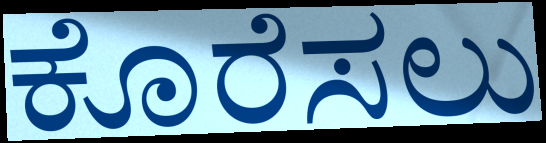
ಕೊರೆಸಲು